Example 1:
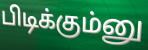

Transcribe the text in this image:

பிடிக்கும்னு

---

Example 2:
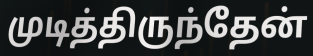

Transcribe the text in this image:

முடித்திருந்தேன்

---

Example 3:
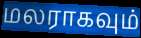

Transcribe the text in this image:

மலராகவும்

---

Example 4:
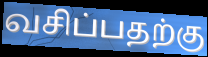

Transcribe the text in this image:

வசிப்பதற்கு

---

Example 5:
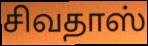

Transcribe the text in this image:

சிவதாஸ்